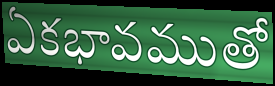
ఏకభావముతో